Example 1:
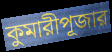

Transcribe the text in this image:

কুমারীপূজার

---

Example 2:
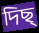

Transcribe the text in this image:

দিছ্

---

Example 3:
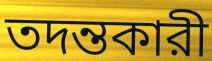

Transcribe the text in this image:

তদন্তকারী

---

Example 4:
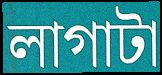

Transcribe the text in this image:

লাগাটা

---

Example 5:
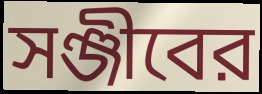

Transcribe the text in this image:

সঞ্জীবের